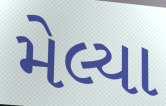
મેલ્યા